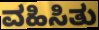
ವಹಿಸಿತು